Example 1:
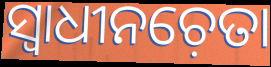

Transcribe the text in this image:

ସ୍ୱାଧୀନଚ଼େତା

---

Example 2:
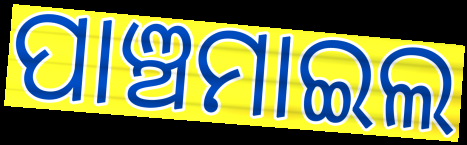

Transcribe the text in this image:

ପାଞ୍ଚମାଇଲ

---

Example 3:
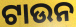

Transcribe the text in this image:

ଟାଉନ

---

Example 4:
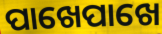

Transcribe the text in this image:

ପାଖେପାଖେ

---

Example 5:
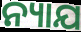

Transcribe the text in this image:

ନ୍ୟାଯ